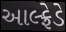
આલ્ફ્રેડે